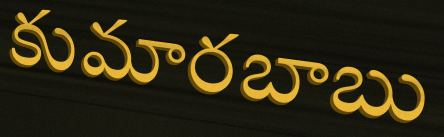
కుమారబాబు